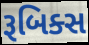
રૂબિક્સ